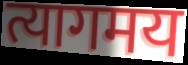
त्यागमय